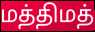
மத்திமத்